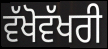
ਵੱਖੋਵੱਖਰੀ